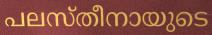
പലസ്തീനായുടെ